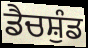
ਡੈਚਸ਼ੁੰਡ